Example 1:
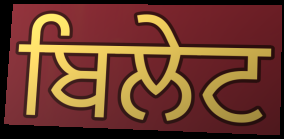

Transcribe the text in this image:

ਬਿਲੇਟ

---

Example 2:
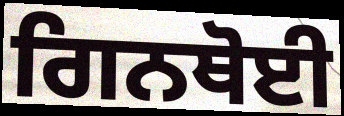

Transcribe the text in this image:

ਗਿਨਥੋਈ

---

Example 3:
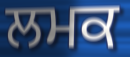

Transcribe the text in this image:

ਲਮਕ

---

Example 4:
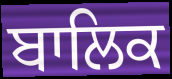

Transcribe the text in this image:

ਬਾਲਿਕ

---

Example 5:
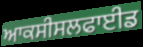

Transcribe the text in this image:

ਆਕਸੀਸਲਫਾਈਡ